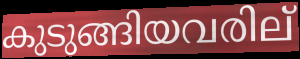
കുടുങ്ങിയവരില്